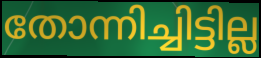
തോന്നിച്ചിട്ടില്ല